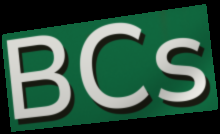
BCs